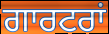
ਗਾਰਟਰਾਂ